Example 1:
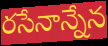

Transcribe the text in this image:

రసేనాన్నేన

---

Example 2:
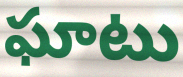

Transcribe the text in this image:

ఘాటు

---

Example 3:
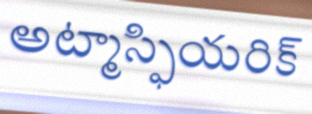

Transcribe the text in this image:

అట్మాస్ఫియరిక్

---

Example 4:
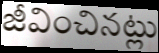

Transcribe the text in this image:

జీవించినట్లు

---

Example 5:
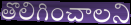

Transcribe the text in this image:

తొలిగించాలని